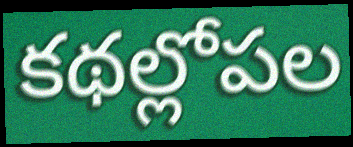
కథల్లోపల